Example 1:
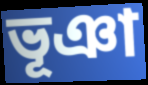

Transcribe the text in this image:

ভূঞা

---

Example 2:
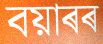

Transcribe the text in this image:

বয়াৰৰ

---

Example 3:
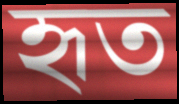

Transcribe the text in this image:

হৃত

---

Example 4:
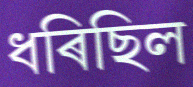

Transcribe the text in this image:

ধৰিছিল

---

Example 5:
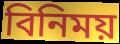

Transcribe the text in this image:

বিনিময়